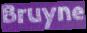
Bruyne